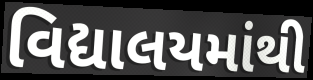
વિદ્યાલયમાંથી